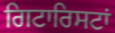
ਗਿਟਾਰਿਸਟਾਂ